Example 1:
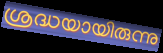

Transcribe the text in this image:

ശ്രദ്ധയായിരുന്നു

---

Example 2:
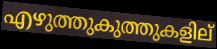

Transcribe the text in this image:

എഴുത്തുകുത്തുകളില്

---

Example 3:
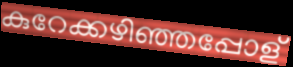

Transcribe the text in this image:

കുറേക്കഴിഞ്ഞപ്പോള്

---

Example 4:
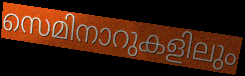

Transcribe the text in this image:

സെമിനാറുകളിലും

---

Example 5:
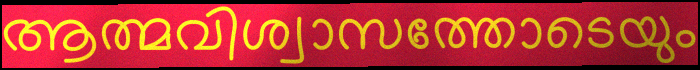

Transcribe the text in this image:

ആത്മവിശ്വാസത്തോടെയും